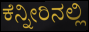
ಕೆನ್ನೀರಿನಲ್ಲಿ